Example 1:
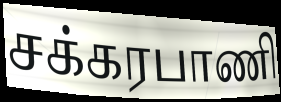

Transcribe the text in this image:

சக்கரபாணி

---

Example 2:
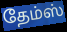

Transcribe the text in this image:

தேம்ஸ்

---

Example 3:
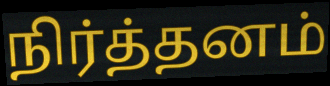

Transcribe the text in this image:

நிர்த்தனம்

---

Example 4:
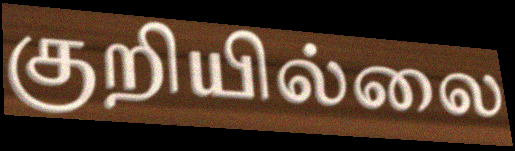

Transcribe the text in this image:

குறியில்லை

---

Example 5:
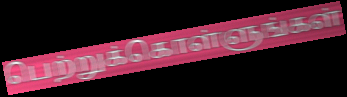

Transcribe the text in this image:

பெற்றுக்கொள்ளுங்கள்